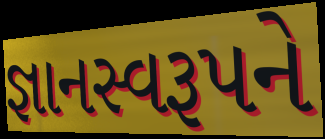
જ્ઞાનસ્વરૂપને